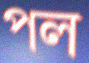
পল